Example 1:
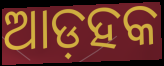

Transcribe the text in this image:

ଆଡ଼ହକ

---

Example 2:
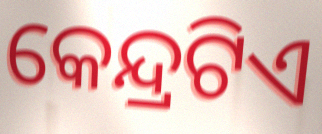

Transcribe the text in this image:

କେନ୍ଦ୍ରଟିଏ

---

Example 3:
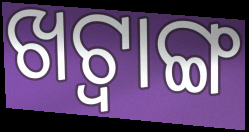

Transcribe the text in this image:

ଖଟ୍ଵାଙ୍ଗ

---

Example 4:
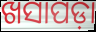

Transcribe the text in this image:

ଖସାପଡ଼ା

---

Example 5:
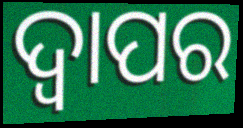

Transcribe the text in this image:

ଦ୍ୱାପର